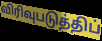
விரிவுபடுத்திப்